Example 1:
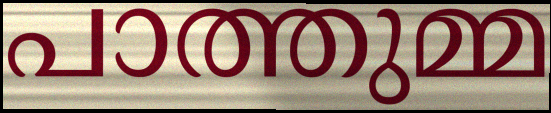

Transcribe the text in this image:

പാത്തുമ്മ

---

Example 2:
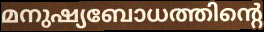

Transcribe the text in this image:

മനുഷ്യബോധത്തിന്റെ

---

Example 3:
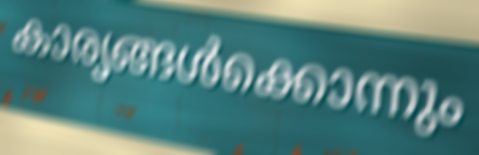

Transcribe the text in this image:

കാര്യങ്ങൾക്കൊന്നും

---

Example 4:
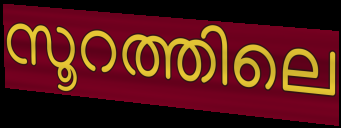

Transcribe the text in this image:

സൂറത്തിലെ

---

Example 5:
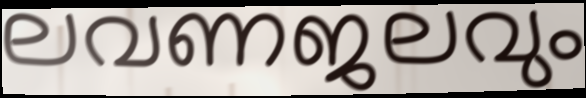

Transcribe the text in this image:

ലവണജലവും